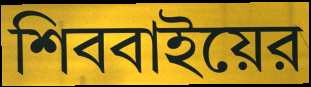
শিববাইয়ের